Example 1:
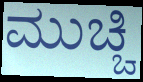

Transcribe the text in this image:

ಮುಚ್ಚಿ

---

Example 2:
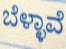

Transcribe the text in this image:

ಬೆಳ್ಳಾವೆ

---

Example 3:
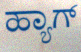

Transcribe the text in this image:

ಹ್ಯಾಗ್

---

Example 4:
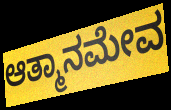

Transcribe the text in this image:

ಆತ್ಮಾನಮೇವ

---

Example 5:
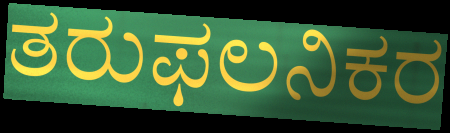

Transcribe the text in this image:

ತರುಫಲನಿಕರ